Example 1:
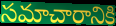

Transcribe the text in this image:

సమాచారానికి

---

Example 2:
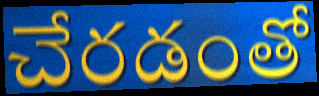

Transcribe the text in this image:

చేరడంతో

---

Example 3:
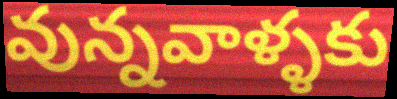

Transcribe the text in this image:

వున్నవాళ్ళకు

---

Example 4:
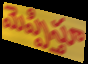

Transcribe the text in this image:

మెప్పిస్తూ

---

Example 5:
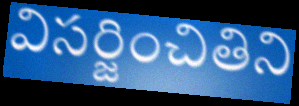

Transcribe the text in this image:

విసర్జించితిని